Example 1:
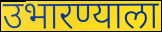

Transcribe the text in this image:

उभारण्याला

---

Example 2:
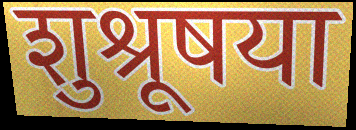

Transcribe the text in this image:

शुश्रूषया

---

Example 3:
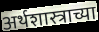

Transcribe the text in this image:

अर्थशास्त्राच्या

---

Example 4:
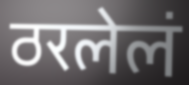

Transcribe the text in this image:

ठरलेलं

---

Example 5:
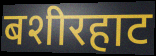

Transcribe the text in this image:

बशीरहाट